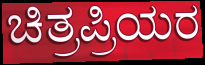
ಚಿತ್ರಪ್ರಿಯರ